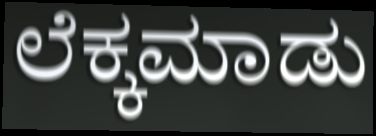
ಲೆಕ್ಕಮಾಡು